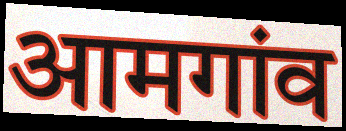
आमगांव